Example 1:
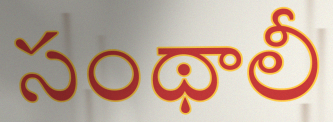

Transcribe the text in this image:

సంథాలీ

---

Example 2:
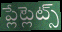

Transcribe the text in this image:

ప్లేట్లెట్స్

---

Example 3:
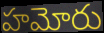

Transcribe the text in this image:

హమోరు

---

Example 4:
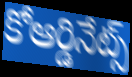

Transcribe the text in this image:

కోఆర్డినేట్స్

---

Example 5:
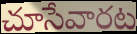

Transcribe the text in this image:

చూసేవారట